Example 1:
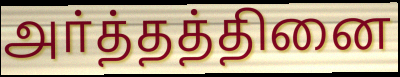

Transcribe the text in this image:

அர்த்தத்தினை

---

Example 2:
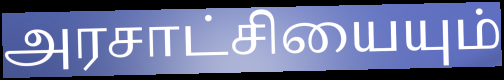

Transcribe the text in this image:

அரசாட்சியையும்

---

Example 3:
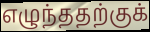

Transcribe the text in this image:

எழுந்ததற்குக்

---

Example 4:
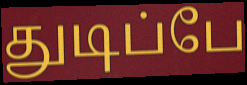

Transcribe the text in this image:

துடிப்பே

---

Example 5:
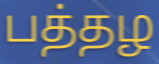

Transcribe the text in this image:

பத்தழ